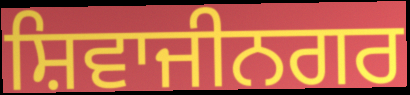
ਸ਼ਿਵਾਜੀਨਗਰ